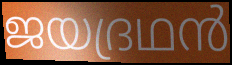
ജയദ്രഥൻ